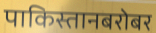
पाकिस्तानबरोबर